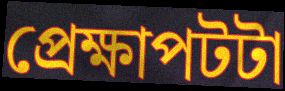
প্রেক্ষাপটটা